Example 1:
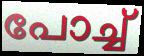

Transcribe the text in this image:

പോച്ച്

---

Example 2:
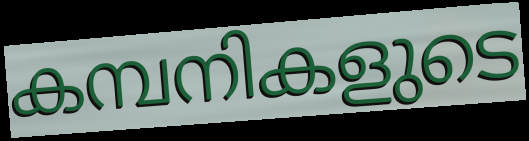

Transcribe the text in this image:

കമ്പനികളുടെ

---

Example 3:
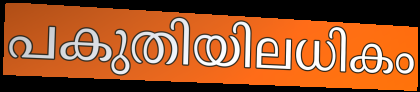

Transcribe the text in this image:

പകുതിയിലധികം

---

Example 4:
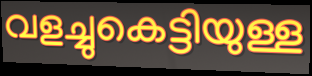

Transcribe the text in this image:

വളച്ചുകെട്ടിയുള്ള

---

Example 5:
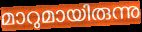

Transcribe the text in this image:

മാറുമായിരുന്നു